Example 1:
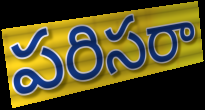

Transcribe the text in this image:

పరిసరా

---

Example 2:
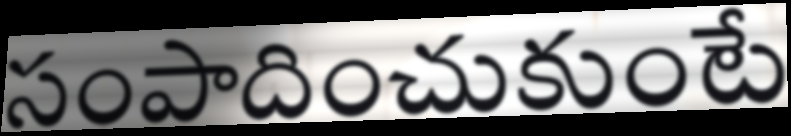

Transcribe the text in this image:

సంపాదించుకుంటే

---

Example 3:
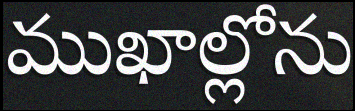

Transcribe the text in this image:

ముఖాల్లోను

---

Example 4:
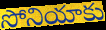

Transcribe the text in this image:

సోనియాకు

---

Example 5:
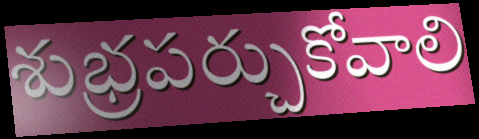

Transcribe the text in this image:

శుభ్రపర్చుకోవాలి